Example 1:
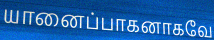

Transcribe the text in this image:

யானைப்பாகனாகவே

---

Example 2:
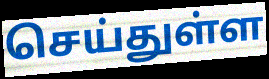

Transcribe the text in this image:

செய்துள்ள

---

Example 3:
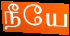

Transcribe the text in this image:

நீயே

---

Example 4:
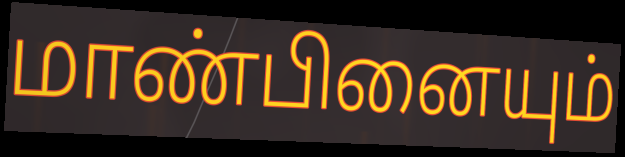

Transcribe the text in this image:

மாண்பினையும்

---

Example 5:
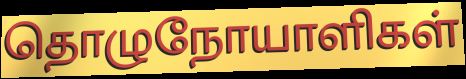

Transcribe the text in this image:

தொழுநோயாளிகள்